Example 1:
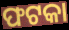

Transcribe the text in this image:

ଫଟକା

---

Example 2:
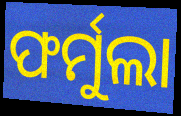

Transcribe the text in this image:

ଫର୍ମୁଲା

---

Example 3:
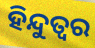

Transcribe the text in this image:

ହିନ୍ଦୁତ୍ବର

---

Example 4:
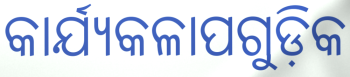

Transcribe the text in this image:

କାର୍ଯ୍ୟକଳାପଗୁଡ଼ିକ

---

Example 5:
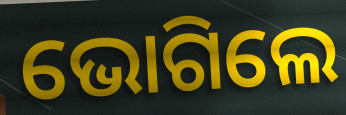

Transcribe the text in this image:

ଭୋଗିଲେ